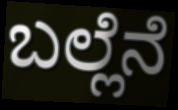
ಬಲ್ಲೆನೆ